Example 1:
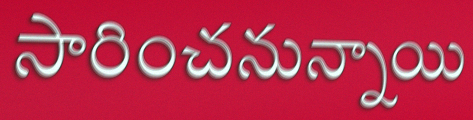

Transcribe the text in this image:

సారించనున్నాయి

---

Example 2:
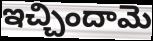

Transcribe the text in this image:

ఇచ్చిందామె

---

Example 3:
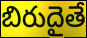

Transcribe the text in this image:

బిరుదైతే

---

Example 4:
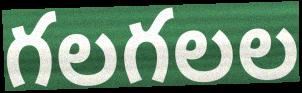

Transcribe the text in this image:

గలగలల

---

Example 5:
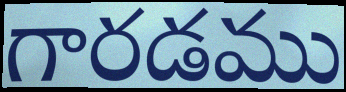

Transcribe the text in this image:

గారడము